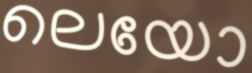
ലെയോ